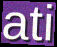
ati